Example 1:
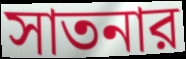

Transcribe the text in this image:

সাতনার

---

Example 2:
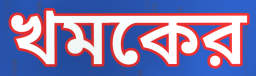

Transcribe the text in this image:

খমকের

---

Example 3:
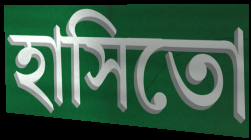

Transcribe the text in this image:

হাসিতো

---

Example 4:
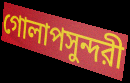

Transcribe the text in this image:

গোলাপসুন্দরী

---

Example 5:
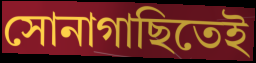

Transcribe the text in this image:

সোনাগাছিতেই